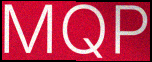
MQP